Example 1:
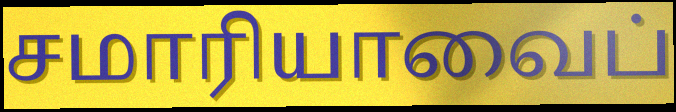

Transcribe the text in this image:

சமாரியாவைப்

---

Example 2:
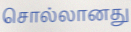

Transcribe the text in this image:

சொல்லானது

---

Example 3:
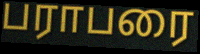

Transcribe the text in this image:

பராபரை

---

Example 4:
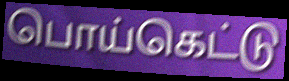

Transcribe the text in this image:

பொய்கெட்டு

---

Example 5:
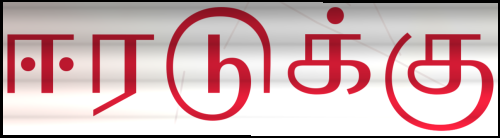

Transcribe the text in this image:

ஈரடுக்கு